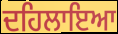
ਦਹਿਲਾਇਆ